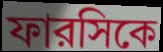
ফারসিকে